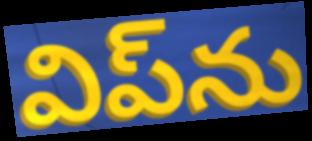
విప్‌ను